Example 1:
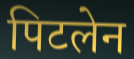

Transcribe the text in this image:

पिटलेन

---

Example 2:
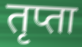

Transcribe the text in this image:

तृप्ता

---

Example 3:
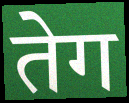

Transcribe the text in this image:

तेग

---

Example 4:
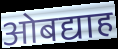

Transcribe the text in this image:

ओबद्याह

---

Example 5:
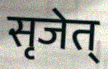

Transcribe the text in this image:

सृजेत्